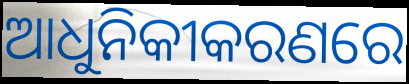
ଆଧୁନିକୀକରଣରେ